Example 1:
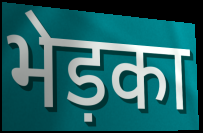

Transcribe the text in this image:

भेड़का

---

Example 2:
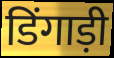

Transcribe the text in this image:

डिंगाड़ी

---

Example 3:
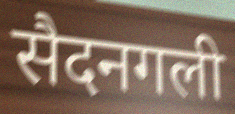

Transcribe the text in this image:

सैदनगली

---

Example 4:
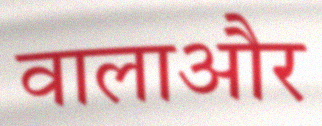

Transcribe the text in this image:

वालाऔर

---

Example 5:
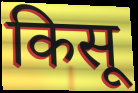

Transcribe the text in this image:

किसू